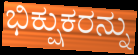
ಭಿಕ್ಷುಕರನ್ನು